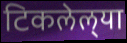
टिकलेल्या